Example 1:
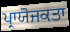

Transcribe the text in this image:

ਪ੍ਰਾਯੋਜਕਤਾ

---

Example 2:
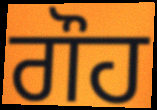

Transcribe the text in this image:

ਗੌਹ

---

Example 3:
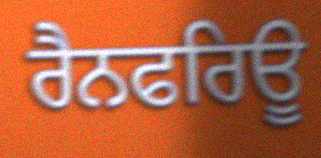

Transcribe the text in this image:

ਰੈਨਫਰਿਊ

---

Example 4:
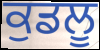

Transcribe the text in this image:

ਕੁਡਲੂ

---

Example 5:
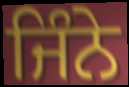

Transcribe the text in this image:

ਜਿੰਨੇ